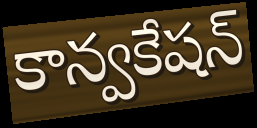
కాన్వకేషన్